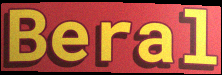
Beral